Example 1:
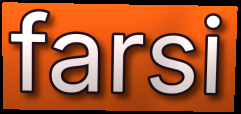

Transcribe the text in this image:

farsi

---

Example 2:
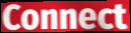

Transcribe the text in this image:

Connect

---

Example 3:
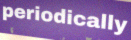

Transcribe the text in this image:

periodically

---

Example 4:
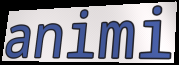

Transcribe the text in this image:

animi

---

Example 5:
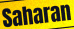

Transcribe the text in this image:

Saharan